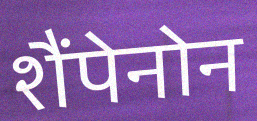
शैंपेनोन